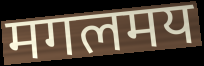
मगलमय